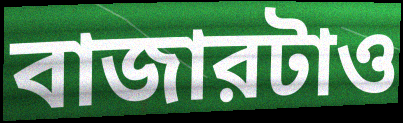
বাজারটাও